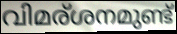
വിമര്ശനമുണ്ട്